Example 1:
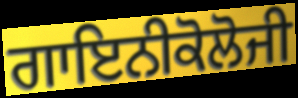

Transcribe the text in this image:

ਗਾਇਨੀਕੋਲੋਜੀ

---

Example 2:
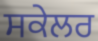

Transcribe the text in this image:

ਸਕੇਲਰ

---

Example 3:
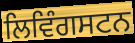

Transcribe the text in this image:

ਲਿਵਿੰਗਸਟਨ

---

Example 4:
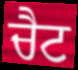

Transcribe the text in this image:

ਚੈਟ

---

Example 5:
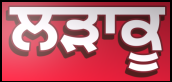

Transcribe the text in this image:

ਲੜਾਕੂ